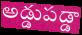
అడ్డుపడ్డా